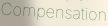
Compensation